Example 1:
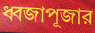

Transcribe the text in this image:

ধ্বজাপূজার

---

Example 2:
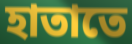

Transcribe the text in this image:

হাতাতে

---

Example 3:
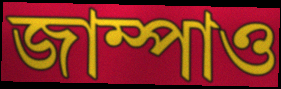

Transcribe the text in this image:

জাম্পাও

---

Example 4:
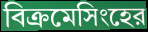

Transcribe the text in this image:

বিক্রমেসিংহের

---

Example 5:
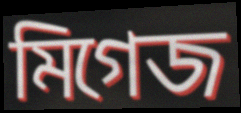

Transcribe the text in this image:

মিগেজ